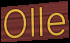
Olle